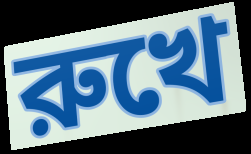
রুখে